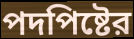
পদপিষ্টের